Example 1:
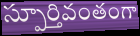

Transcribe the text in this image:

స్పూర్తివంతంగా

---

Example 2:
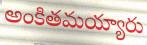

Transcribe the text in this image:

అంకితమయ్యారు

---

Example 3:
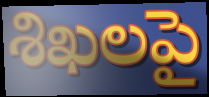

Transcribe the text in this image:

శిఖలపై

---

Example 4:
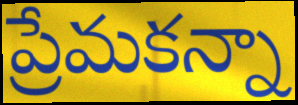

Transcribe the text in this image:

ప్రేమకన్నా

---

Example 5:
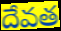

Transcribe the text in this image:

దేవత